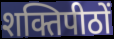
शक्तिपीठों